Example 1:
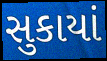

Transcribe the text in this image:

સુકાયાં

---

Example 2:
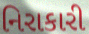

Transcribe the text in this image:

નિરાકારી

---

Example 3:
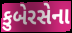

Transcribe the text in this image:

કુબેરસેના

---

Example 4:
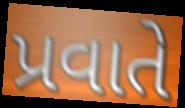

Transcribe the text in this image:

પ્રવાતે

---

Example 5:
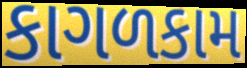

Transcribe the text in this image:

કાગળકામ